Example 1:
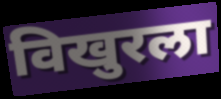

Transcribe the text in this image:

विखुरला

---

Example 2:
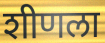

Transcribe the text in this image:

शीणला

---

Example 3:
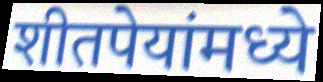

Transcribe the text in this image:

शीतपेयांमध्ये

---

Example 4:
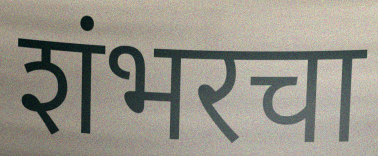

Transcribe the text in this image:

शंभरचा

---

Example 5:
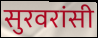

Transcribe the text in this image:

सुरवरांसी